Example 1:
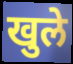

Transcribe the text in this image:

खुले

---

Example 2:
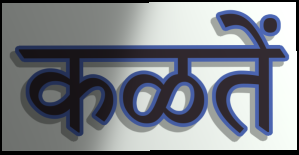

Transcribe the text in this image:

कळतें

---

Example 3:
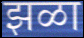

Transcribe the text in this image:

झळा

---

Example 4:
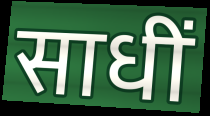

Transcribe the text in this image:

साधीं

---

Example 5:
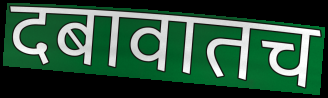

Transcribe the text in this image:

दबावातच